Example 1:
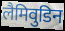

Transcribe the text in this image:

लैमिवुडिन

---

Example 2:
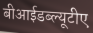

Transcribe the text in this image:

बीआईडब्ल्यूटीए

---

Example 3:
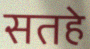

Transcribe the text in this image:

सतहे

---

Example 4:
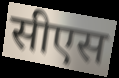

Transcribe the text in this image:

सीएस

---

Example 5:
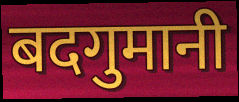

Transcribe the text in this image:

बदगुमानी